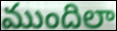
ముందిలా